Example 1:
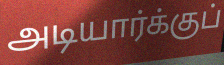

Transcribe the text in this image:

அடியார்க்குப்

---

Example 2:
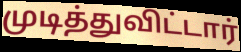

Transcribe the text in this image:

முடித்துவிட்டார்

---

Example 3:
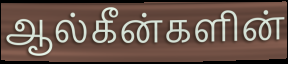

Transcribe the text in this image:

ஆல்கீன்களின்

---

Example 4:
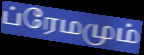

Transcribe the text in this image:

ப்ரேமமும்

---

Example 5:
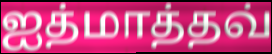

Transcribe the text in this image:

ஐத்மாத்தவ்